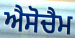
ਐਸੋਚੈਮ